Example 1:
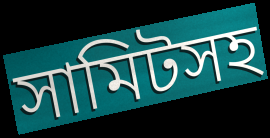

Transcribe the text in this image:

সামিটসহ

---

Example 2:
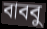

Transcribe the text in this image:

বাববু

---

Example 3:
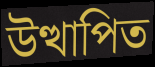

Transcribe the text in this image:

উত্থাপিত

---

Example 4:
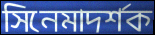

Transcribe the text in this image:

সিনেমাদর্শক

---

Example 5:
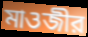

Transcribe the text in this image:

মাওজীর